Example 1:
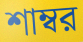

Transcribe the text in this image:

শাম্বর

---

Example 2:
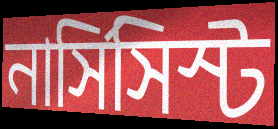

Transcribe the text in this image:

নার্সিসিস্ট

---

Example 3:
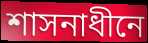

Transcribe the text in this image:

শাসনাধীনে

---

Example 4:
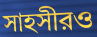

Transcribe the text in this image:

সাহসীরও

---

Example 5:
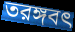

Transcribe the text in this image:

তরঙ্গবৎ